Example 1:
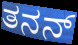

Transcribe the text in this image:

ತನನ್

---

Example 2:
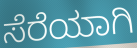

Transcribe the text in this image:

ಸೆರೆಯಾಗಿ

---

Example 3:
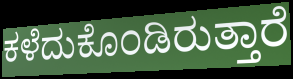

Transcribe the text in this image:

ಕಳೆದುಕೊಂಡಿರುತ್ತಾರೆ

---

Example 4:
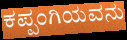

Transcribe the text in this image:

ಕಪ್ಪಂಗಿಯವನು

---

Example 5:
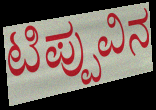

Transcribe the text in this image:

ಟಿಪ್ಪುವಿನ